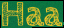
Haa